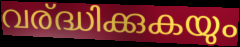
വര്ദ്ധിക്കുകയും